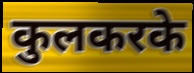
कुलकरके